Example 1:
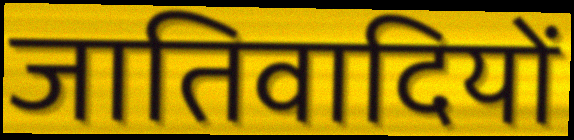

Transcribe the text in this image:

जातिवादियों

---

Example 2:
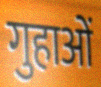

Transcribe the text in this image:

गुहाओं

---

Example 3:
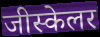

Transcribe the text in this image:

जीस्केलर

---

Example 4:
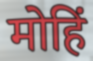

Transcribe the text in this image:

मोहिं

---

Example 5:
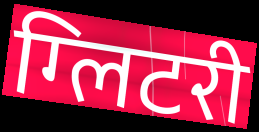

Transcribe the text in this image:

ग्लिटरी